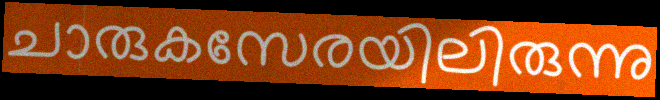
ചാരുകസേരയിലിരുന്നു